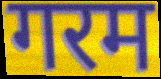
गरम